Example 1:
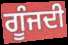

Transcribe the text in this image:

ਗੂੰਜਦੀ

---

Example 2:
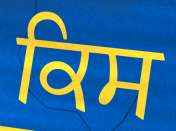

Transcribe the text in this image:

ਕਿਸ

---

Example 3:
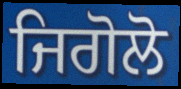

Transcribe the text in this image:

ਜਿਗੋਲੋ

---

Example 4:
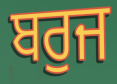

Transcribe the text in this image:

ਬਰੁਜ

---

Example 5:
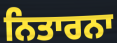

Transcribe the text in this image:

ਨਿਤਾਰਨਾ